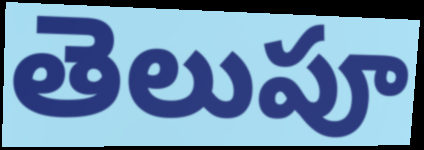
తెలుపూ